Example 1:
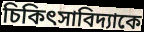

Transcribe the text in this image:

চিকিৎসাবিদ্যাকে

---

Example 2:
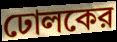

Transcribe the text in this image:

ঢোলকের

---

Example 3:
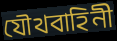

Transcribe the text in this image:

যৌথবাহিনী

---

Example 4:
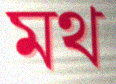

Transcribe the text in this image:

মথ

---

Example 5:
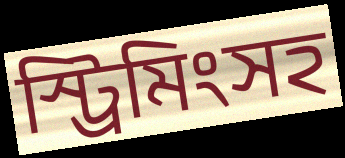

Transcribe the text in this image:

স্ট্রিমিংসহ